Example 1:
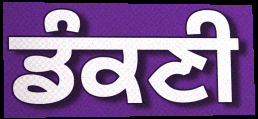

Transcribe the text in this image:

ਡੰਕਣੀ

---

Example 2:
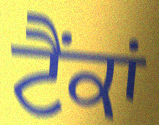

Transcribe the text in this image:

ਟੈਂਕਾਂ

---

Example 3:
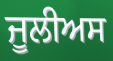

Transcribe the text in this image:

ਜੂਲੀਅਸ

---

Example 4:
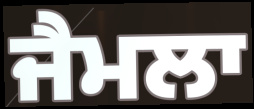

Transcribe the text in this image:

ਜੈਮਲਾ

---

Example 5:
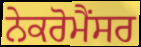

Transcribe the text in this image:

ਨੇਕਰੋਮੈਂਸਰ